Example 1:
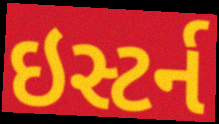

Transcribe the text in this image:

ઇસ્ટર્ન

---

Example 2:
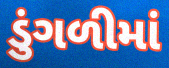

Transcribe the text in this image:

ડુંગળીમાં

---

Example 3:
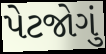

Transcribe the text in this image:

પેટજોગું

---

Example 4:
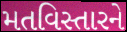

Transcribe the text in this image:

મતવિસ્તારને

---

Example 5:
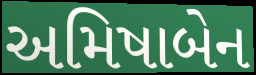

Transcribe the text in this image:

અમિષાબેન